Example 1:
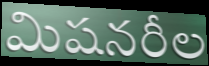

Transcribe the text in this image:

మిషనరీల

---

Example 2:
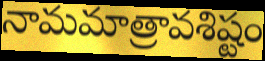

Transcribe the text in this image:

నామమాత్రావశిష్టం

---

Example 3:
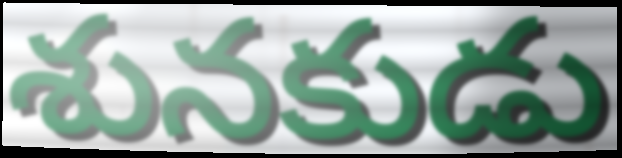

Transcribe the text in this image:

శునకుడు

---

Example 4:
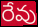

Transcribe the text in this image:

రేవు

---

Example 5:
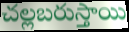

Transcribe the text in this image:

చల్లబరుస్తాయి